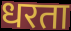
धरता